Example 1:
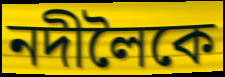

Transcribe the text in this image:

নদীলৈকে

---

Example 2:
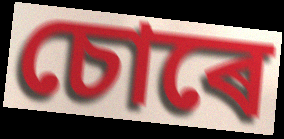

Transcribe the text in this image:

চোৰে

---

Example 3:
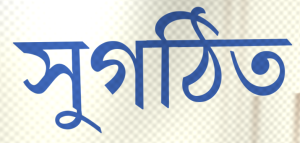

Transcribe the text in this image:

সুগঠিত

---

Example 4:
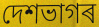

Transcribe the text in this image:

দেশভাগৰ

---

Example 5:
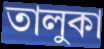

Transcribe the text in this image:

তালুকা